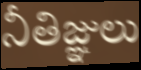
నీతిజ్ఞులు